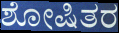
ಶೋಷಿತರ